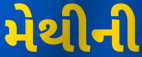
મેથીની